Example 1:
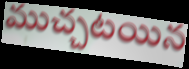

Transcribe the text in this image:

ముచ్చటయిన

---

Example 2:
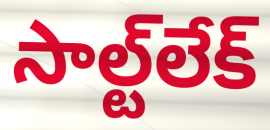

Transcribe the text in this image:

సాల్ట్‌లేక్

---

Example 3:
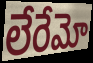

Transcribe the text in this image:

లేరేమో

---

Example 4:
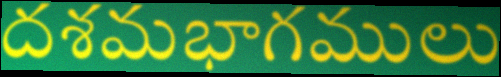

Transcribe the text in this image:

దశమభాగములు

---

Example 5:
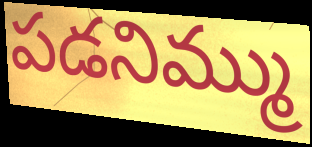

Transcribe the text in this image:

పడనిమ్ము